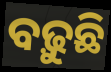
ବଢ଼ୁଛି